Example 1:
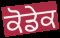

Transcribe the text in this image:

ਕੋਡੇਕ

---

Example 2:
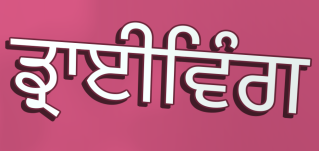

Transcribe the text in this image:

ਡ੍ਰਾਈਵਿੰਗ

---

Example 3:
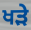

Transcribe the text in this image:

ਖੜੇ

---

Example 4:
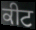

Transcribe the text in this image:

ਕੀਟ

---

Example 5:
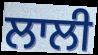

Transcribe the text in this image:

ਲਾਲੀ